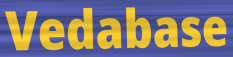
Vedabase